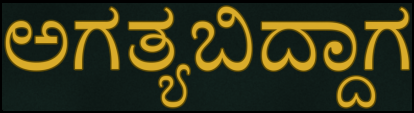
ಅಗತ್ಯಬಿದ್ದಾಗ